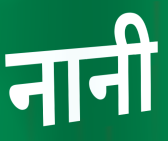
नानी